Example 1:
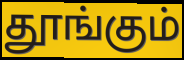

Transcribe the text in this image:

தூங்கும்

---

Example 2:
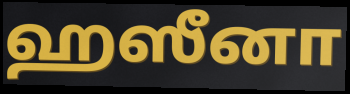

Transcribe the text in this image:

ஹஸீனா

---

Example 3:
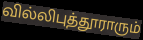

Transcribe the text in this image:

வில்லிபுத்தூராரும்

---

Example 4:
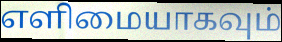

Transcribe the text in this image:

எளிமையாகவும்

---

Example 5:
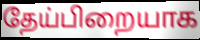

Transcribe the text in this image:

தேய்பிறையாக